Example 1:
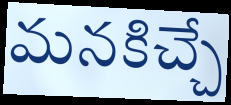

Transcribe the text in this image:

మనకిచ్చే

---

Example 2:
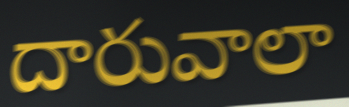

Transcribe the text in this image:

దారువాలా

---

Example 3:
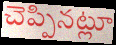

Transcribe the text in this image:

చెప్పినట్లూ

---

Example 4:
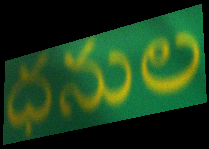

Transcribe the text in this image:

ధనుల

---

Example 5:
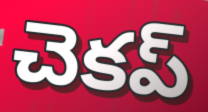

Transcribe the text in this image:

చెకప్